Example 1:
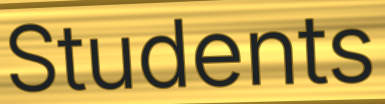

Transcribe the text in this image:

Students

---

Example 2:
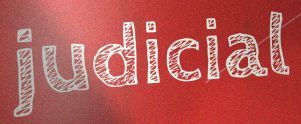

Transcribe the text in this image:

judicial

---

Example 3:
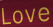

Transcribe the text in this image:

Love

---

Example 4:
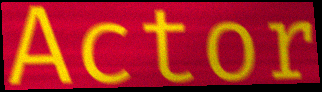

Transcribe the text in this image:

Actor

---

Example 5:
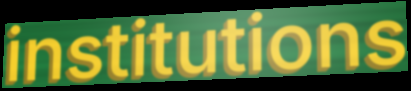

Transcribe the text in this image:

institutions